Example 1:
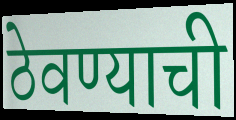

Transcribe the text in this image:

ठेवण्याची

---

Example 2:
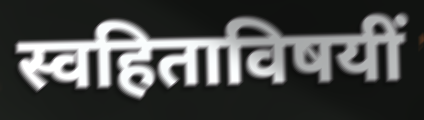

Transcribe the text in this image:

स्वहिताविषयीं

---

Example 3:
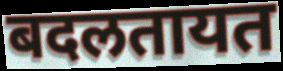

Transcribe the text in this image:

बदलतायत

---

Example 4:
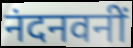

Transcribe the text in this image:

नंदनवनीं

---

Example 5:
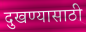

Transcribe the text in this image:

दुखण्यासाठी